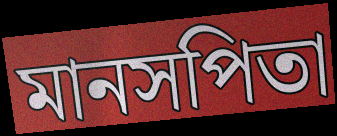
মানসপিতা